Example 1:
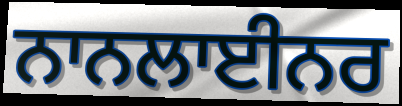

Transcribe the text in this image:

ਨਾਨਲਾਈਨਰ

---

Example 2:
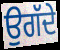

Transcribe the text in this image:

ਉਗੱਦੇ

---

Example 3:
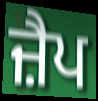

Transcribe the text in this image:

ਜ਼ੈਪ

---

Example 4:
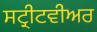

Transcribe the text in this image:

ਸਟ੍ਰੀਟਵੀਅਰ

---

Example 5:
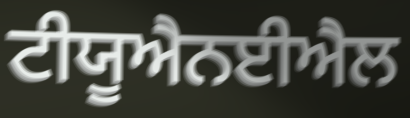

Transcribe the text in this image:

ਟੀਯੂਐਨਈਐਲ